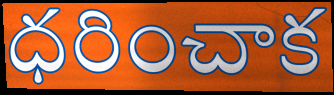
ధరించాక